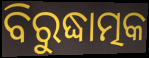
ବିରୁଦ୍ଧାତ୍ମକ